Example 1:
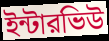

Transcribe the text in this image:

ইন্টারভিউ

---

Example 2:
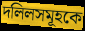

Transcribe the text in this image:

দলিলসমূহকে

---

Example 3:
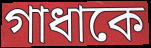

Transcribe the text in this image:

গাধাকে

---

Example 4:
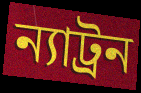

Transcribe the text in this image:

ন্যাট্রন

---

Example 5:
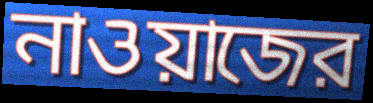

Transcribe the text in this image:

নাওয়াজের